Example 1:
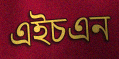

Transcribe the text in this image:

এইচএন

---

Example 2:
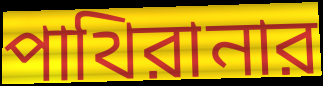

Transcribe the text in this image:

পাথিরানার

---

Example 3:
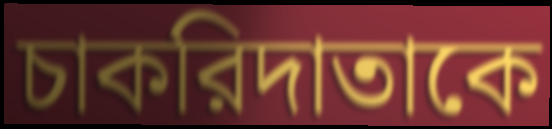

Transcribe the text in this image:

চাকরিদাতাকে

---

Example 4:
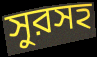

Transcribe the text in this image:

সুরসহ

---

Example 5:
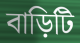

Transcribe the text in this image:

বাড়িটি